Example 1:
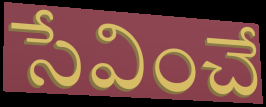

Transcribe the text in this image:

సేవించే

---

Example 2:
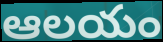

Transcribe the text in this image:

ఆలయం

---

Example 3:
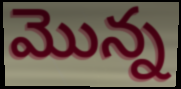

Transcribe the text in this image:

మొన్న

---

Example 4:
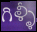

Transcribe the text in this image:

గిళ్ళీ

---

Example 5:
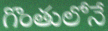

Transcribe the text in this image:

గొంతులోనే